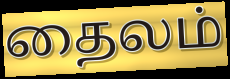
தைலம்